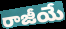
రాజీయే